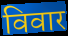
विवार